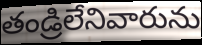
తండ్రిలేనివారును